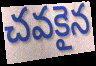
చవకైన